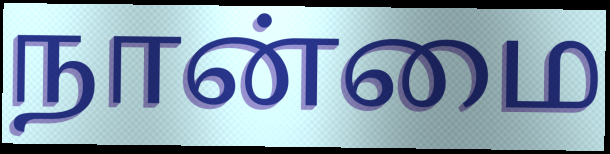
நான்மை